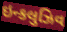
ઇન્કલુઝિવ